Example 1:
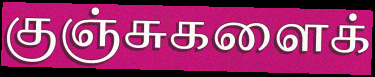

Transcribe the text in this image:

குஞ்சுகளைக்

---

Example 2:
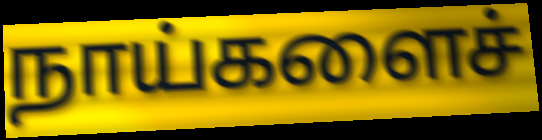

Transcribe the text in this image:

நாய்களைச்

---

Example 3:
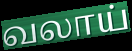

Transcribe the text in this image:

வலாய்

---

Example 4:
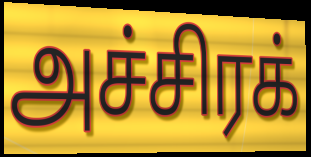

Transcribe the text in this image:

அச்சிரக்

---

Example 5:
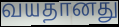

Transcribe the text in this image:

வயதானது